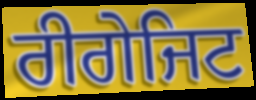
ਰੀਗੇਜਿਟ